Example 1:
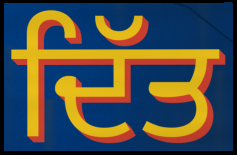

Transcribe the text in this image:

ਦਿੱਤ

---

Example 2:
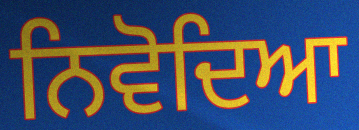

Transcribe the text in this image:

ਨਿਵੋਦਿਆ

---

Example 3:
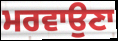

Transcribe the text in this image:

ਮਰਵਾਉਣਾ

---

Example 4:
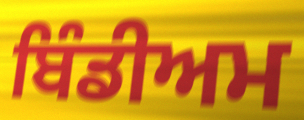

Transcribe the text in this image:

ਬਿੰਡੀਅਮ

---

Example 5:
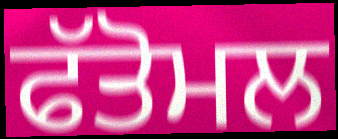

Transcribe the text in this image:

ਫੱਤੋਮਲ